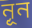
নূন